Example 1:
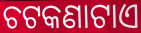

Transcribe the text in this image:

ଚଟକଣାଟାଏ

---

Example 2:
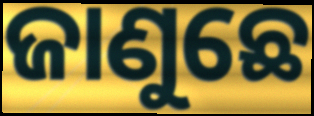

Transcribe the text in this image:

ଜାଣୁଛେ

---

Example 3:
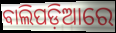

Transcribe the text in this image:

ବାଲିପଡ଼ିଆରେ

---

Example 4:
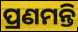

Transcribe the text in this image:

ପ୍ରଣମନ୍ତି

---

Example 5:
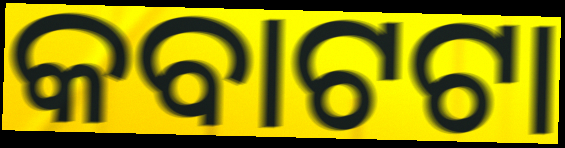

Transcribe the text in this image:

କବାଟଟା